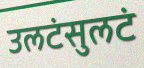
उलटंसुलटं